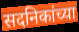
सदनिकांच्या